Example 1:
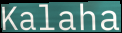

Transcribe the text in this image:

Kalaha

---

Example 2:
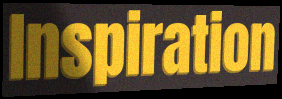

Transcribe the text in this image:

Inspiration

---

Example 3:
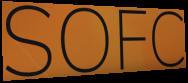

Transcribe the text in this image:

SOFC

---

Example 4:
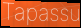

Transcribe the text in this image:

Tapassu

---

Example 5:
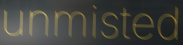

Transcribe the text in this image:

unmisted